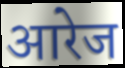
आरेज